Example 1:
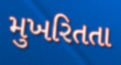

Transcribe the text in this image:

મુખરિતતા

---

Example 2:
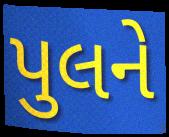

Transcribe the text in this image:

પુલને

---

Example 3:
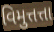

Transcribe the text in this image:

વિમુત્તત્તા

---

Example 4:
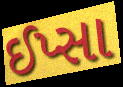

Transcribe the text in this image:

ઈપ્સા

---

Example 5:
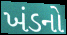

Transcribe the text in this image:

ખંડનો